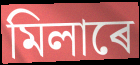
মিলাৰে